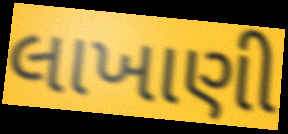
લાખાણી